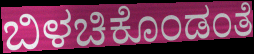
ಬಿಳಚಿಕೊಂಡಂತೆ